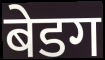
बेडग